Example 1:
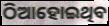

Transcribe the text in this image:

ଠିଆହୋଇଥିବ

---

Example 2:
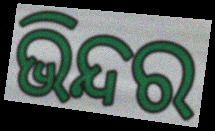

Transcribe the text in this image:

ଭିନ୍ଦର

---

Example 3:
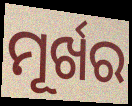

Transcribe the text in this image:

ମୂର୍ଖର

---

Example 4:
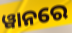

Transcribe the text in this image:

ୱାନରେ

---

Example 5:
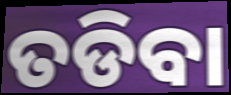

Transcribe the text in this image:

ତଡିବା